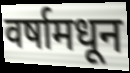
वर्षामधून